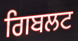
ਗਿਬਲਟ